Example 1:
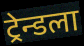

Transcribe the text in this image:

ट्रेन्डला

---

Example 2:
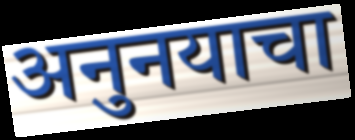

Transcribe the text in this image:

अनुनयाचा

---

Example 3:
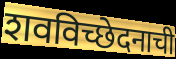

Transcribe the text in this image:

शवविच्छेदनाची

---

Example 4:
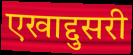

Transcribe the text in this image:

एखाद्दुसरी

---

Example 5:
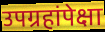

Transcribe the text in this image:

उपग्रहांपेक्षा